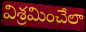
విశ్రమించేలా